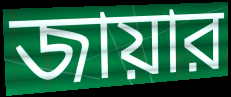
জায়ার